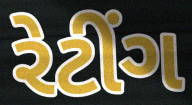
રેટીંગ